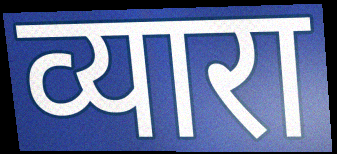
व्यारा